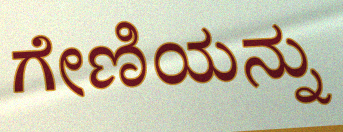
ಗೇಣಿಯನ್ನು